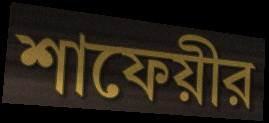
শাফেয়ীর